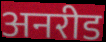
अनरीड